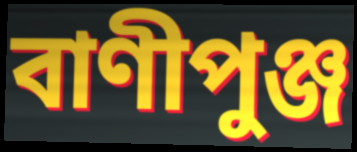
বাণীপুঞ্জ